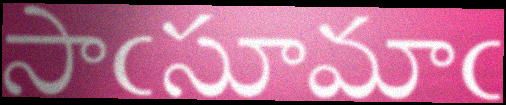
సాఁసూమాఁ